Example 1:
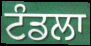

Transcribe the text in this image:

ਟੰਡਲਾ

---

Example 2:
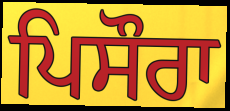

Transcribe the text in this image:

ਪਿਸੌਰਾ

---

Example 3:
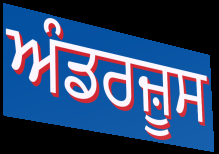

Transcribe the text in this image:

ਅੰਡਰਜ਼ੂਸ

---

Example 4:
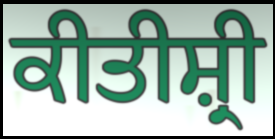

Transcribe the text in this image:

ਕੀਤੀਸ਼੍ਰੀ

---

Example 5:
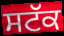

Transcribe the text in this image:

ਸਟੱਕ